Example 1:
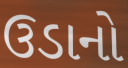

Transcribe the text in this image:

ઉડાનો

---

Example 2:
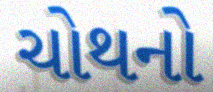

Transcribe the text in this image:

ચોથનો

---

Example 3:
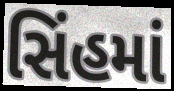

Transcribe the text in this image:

સિંહમાં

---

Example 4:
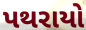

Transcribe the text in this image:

પથરાયો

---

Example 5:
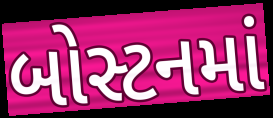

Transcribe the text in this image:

બોસ્ટનમાં